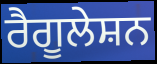
ਰੈਗੂਲੇਸ਼ਨ